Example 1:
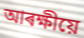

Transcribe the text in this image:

আৰক্ষীয়ে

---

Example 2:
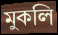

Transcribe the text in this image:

মুকলি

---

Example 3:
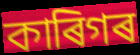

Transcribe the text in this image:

কাৰিগৰ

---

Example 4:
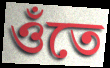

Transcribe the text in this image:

ওঁতে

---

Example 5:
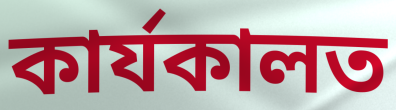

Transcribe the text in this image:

কাৰ্যকালত